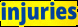
injuries